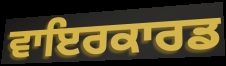
ਵਾਇਰਕਾਰਡ